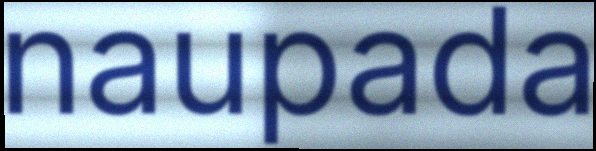
naupada